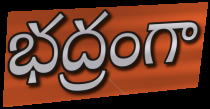
భద్రంగా